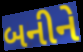
બનીને